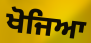
ਖੋਜਿਆ